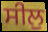
ਸੀਲੁ